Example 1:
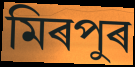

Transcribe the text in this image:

মিৰপুৰ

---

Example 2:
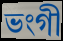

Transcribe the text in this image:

ভংগী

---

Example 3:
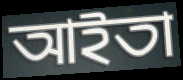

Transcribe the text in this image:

আইতা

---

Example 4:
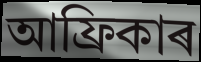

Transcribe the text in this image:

আফ্ৰিকাৰ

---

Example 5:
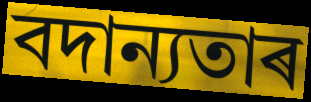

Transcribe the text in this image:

বদান্যতাৰ